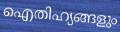
ഐതിഹ്യങ്ങളും